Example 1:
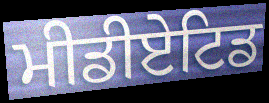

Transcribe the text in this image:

ਮੀਡੀਏਟਿਡ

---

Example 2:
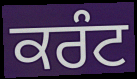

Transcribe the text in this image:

ਕਰੰਟ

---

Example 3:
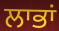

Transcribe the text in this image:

ਲਾਭਾਂ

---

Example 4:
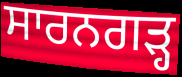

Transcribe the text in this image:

ਸਾਰਨਗੜ੍ਹ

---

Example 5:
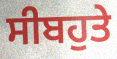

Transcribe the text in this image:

ਸੀਬਹੁਤੇ